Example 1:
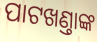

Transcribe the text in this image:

ପାଟଖଣ୍ତାଙ୍କ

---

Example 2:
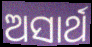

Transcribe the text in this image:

ଅସାର୍ଥ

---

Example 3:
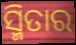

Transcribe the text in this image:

ସ୍ମିତାର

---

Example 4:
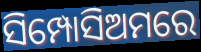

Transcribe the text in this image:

ସିମ୍ପୋସିଅମରେ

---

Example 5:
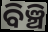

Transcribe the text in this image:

ବିଞ୍ଚି